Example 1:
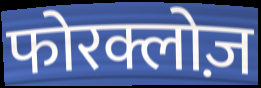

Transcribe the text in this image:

फोरक्लोज़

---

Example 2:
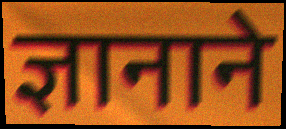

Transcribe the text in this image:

ज्ञानाने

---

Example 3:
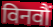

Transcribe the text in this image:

विनवौं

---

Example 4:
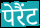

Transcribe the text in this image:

पेरैंट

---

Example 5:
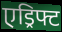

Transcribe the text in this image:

एड्रिफ्ट